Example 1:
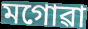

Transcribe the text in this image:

মগোৱা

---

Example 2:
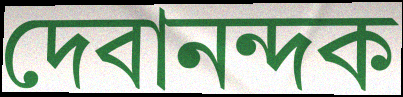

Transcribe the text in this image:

দেবানন্দক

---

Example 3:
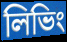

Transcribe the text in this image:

লিভিং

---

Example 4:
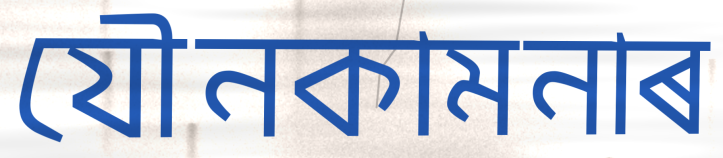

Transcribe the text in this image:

যৌনকামনাৰ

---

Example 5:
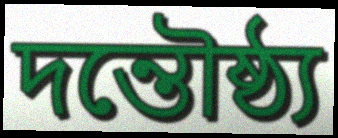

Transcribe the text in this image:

দন্তৌষ্ঠ্য